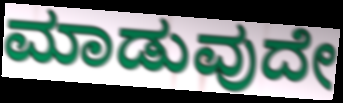
ಮಾಡುವುದೇ